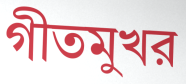
গীতমুখর